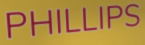
PHILLIPS